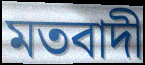
মতবাদী